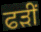
ਫੜੀਂ